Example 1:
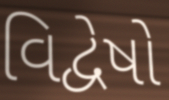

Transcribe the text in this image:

વિદ્વેષો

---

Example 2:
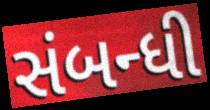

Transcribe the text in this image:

સંબન્ધી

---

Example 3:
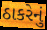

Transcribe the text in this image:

ઠાકરેનું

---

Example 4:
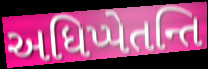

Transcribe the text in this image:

અધિપ્પેતન્તિ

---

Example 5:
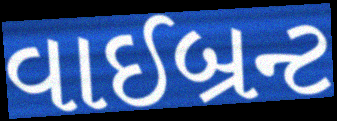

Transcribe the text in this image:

વાઈબ્રન્ટ